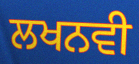
ਲਖਨਵੀ